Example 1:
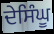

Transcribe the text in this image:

ਦੇਸਿੰਘੂ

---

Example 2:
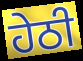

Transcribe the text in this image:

ਹੇਠੀ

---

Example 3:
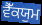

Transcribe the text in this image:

ਵੈੱਕਯੁਮ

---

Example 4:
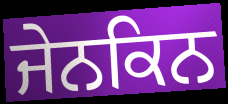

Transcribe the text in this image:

ਜੇਨਕਿਨ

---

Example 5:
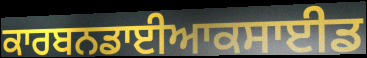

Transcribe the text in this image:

ਕਾਰਬਨਡਾਈਆਕਸਾਈਡ